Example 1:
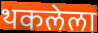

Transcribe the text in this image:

थकलेला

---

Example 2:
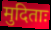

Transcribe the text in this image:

मुदिताः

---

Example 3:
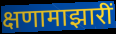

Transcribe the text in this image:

क्षणामाझारीं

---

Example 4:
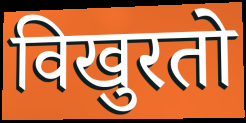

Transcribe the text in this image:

विखुरतो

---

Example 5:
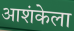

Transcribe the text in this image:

आशंकेला